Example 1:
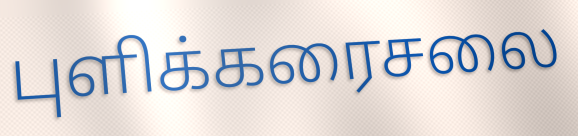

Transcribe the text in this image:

புளிக்கரைசலை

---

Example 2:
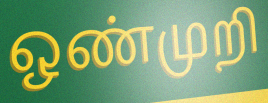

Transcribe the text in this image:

ஒண்முறி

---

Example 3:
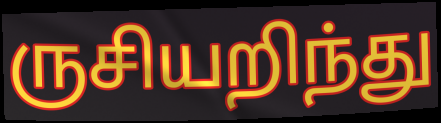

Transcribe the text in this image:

ருசியறிந்து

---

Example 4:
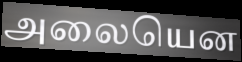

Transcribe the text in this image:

அலையென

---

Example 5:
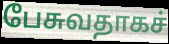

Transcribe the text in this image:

பேசுவதாகச்